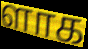
ளாக